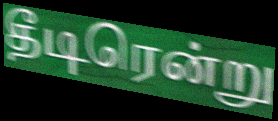
தீடிரென்று